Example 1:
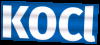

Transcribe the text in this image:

KOCl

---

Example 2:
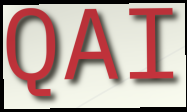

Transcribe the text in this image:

QAI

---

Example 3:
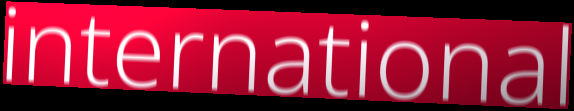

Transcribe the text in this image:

international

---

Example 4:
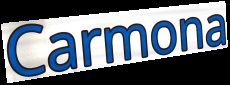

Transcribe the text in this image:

Carmona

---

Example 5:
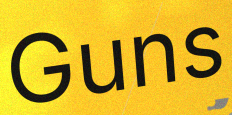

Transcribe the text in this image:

Guns